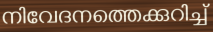
നിവേദനത്തെക്കുറിച്ച്